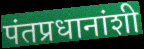
पंतप्रधानांशी